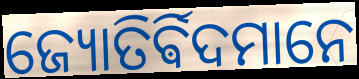
ଜ୍ୟୋତିର୍ଵିଦମାନେ